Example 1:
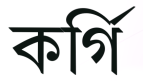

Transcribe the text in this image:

কর্গি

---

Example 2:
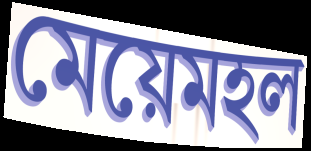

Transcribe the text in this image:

মেয়েমহল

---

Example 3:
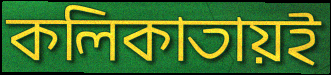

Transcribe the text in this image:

কলিকাতায়ই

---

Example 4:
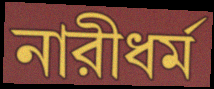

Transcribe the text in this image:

নারীধর্ম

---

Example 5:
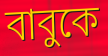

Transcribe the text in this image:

বাবুকে